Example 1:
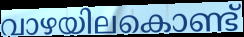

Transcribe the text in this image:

വാഴയിലകൊണ്ട്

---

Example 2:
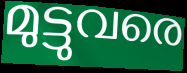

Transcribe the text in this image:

മുട്ടുവരെ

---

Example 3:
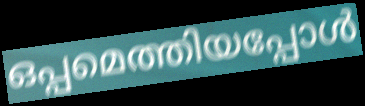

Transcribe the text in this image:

ഒപ്പമെത്തിയപ്പോൾ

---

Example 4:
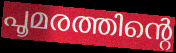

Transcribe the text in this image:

പൂമരത്തിന്റെ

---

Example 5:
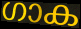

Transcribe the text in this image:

ഗാക